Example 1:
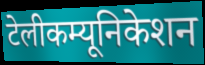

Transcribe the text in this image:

टेलीकम्यूनिकेशन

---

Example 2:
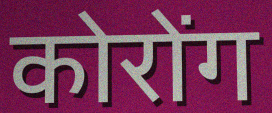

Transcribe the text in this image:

कोरोंग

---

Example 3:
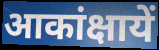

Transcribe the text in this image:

आकांक्षायें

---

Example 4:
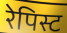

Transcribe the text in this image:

रेपिस्ट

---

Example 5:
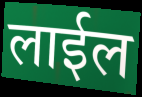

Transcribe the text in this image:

लाईल